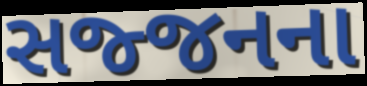
સજ્જનના